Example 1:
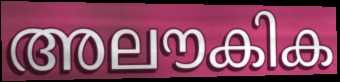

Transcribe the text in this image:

അലൗകിക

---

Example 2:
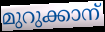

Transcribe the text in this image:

മുറുക്കാന്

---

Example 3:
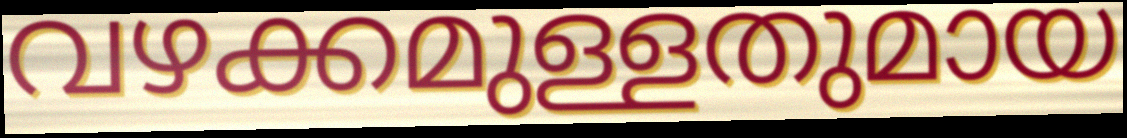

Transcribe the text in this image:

വഴക്കമുള്ളതുമായ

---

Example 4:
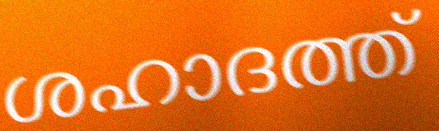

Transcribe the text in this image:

ശഹാദത്ത്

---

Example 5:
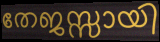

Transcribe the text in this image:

തേജസ്സായി